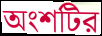
অংশটির